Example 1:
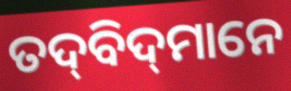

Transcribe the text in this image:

ତଦ୍‌ବିଦ୍‌ମାନେ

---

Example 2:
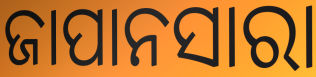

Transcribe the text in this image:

ଜାପାନସାରା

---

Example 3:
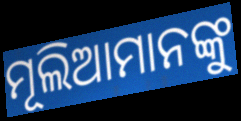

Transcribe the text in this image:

ମୂଲିଆମାନଙ୍କୁ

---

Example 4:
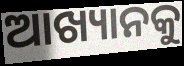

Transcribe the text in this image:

ଆଖ୍ୟାନକୁ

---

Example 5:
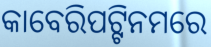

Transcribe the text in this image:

କାବେରିପଟ୍ଟିନମରେ